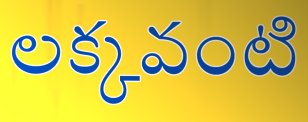
లక్కవంటి